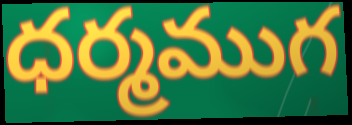
ధర్మముగ